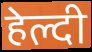
हेल्दी